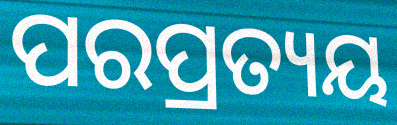
ପରପ୍ରତ୍ୟୟ